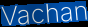
Vachan